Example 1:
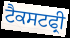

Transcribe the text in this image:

ਟੈਕਸਟਫ੍ਰੀ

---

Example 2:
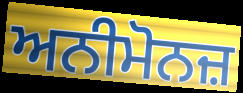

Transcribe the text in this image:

ਅਨੀਮੋਨਜ਼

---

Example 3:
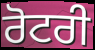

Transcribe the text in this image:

ਰੋਟਰੀ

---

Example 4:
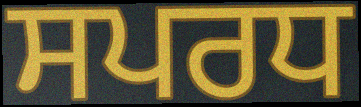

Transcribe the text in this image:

ਸਪਰਧ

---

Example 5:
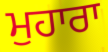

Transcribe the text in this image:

ਮੁਹਾਰਾ